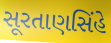
સૂરતાણસિંહે